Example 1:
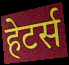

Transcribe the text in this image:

हेटर्स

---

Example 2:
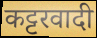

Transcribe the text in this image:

कट्टरवादी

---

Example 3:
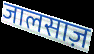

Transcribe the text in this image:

जालसाज़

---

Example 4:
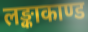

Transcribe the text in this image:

लङ्काकाण्ड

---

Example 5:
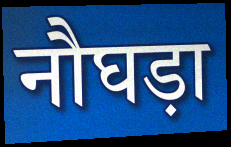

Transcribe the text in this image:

नौघड़ा